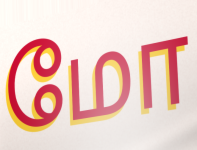
மோ